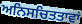
ਅਨਿਸਚਿਤਤਾਵਾਂ